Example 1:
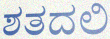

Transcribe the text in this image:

ಶತದಲಿ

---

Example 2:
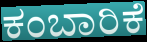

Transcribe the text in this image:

ಕಂಬಾರಿಕೆ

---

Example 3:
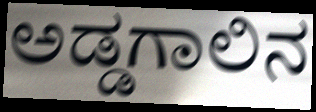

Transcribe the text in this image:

ಅಡ್ಡಗಾಲಿನ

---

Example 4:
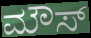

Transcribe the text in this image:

ಮೌಸ್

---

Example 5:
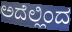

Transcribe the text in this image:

ಅದೆಲ್ಲಿಂದ